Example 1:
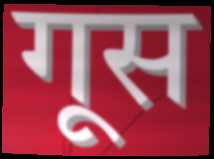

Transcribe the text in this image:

गूस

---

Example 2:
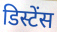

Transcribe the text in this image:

डिस्टेंस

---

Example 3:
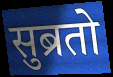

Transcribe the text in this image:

सुब्रतो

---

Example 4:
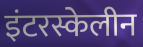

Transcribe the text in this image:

इंटरस्केलीन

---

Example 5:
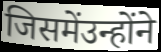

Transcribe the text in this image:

जिसमेंउन्होंने